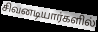
சிவனடியார்களில்